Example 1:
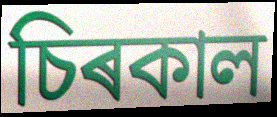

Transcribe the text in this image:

চিৰকাল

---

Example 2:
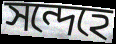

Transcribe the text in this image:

সন্দেহে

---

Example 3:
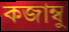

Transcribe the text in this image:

কজাম্বু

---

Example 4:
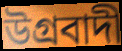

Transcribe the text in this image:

উগ্ৰবাদী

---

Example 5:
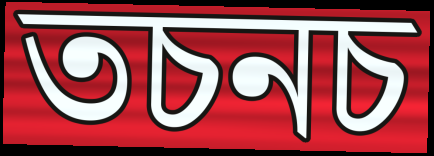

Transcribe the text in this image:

তচনচ